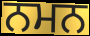
ਨਮਨ